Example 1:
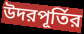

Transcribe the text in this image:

উদরপূর্তির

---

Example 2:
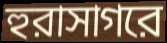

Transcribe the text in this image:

হুরাসাগরে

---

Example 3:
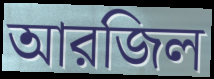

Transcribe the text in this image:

আরজিল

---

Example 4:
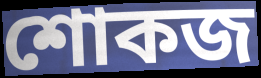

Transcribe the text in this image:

শোকজ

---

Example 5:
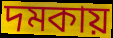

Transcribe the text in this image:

দমকায়